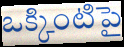
ఒక్కింటిపై